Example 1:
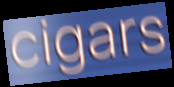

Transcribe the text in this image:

cigars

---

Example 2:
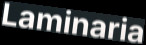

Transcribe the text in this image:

Laminaria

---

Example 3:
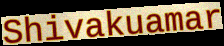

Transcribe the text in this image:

Shivakuamar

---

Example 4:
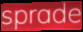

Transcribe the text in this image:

sprade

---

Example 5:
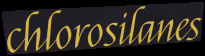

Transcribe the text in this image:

chlorosilanes